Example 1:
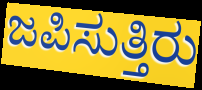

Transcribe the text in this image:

ಜಪಿಸುತ್ತಿರು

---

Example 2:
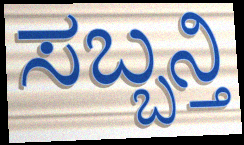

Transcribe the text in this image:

ಸಬ್ಬನ್ತಿ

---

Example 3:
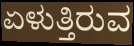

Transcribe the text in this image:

ಏಳುತ್ತಿರುವ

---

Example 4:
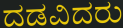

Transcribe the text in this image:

ದಡವಿದರು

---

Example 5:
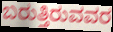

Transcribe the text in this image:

ಬರುತ್ತಿರುವವರ